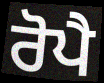
ਰੋਪੈ